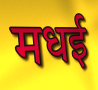
मधई